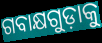
ଗବାକ୍ଷଗୁଡ଼ାକୁ